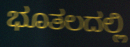
ಭೂತಲದಲ್ಲಿ